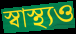
স্বাস্থ্যও